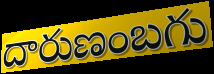
దారుణంబగు